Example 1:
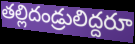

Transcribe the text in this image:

తల్లిదండ్రులిద్దరూ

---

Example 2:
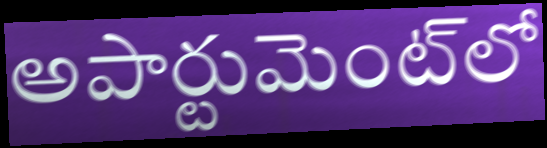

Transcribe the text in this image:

అపార్టుమెంట్‌లో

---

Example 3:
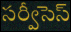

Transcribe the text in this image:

సర్వీసెస్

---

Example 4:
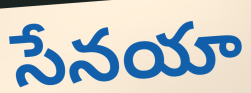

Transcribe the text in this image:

సేనయా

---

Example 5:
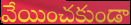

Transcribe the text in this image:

వేయించకుండా